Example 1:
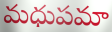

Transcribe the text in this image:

మధుపమా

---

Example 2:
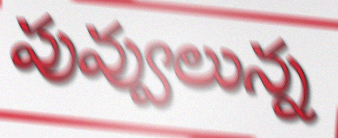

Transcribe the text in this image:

పువ్వులున్న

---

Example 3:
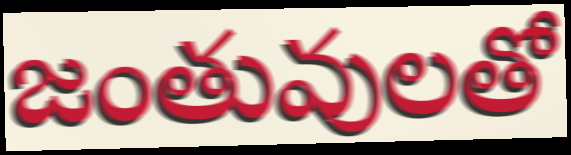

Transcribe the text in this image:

జంతువులతో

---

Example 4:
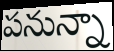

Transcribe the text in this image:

పనున్నా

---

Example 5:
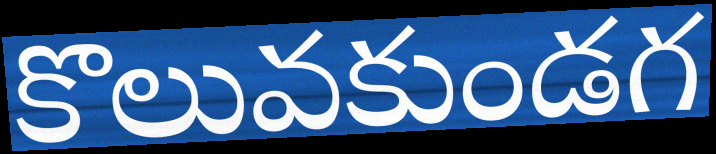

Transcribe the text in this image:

కొలువకుండగ